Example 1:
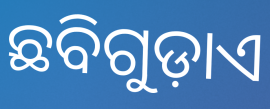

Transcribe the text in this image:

ଛବିଗୁଡ଼ାଏ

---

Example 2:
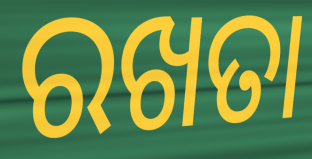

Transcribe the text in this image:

ରଖତା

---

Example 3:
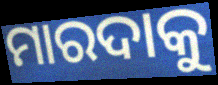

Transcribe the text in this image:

ମାରଦାକୁ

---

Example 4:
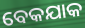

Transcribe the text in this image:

ବେକଯାକ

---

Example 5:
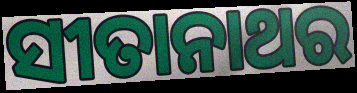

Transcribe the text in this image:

ସୀତାନାଥର